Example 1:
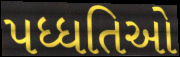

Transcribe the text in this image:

પધ્ધતિઓ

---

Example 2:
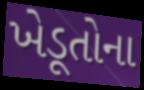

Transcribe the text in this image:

ખેડૂતોના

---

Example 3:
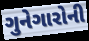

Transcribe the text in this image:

ગુનેગારોની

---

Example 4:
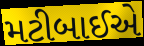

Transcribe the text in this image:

મટીબાઈએ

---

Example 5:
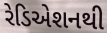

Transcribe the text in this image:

રેડિએશનથી